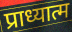
प्राध्यात्म